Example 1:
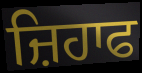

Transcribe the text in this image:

ਜ਼ਿਹਾਫ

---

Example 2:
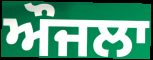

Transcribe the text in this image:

ਔਜਲਾ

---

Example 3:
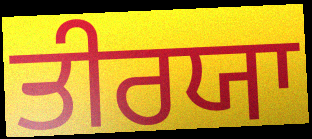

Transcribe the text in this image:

ਤੀਰਯਾ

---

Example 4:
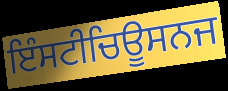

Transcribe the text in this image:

ਇੰਸਟੀਚਿਊਸਨਜ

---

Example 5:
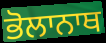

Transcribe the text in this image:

ਭੋਲਾਨਾਥ